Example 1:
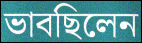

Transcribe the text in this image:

ভাবছিলেন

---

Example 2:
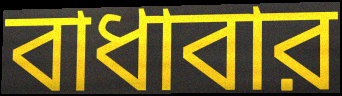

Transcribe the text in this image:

বাধাবার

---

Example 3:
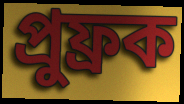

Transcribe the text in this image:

প্রুফ্রক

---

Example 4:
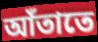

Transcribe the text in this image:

আঁতাতে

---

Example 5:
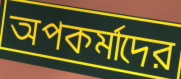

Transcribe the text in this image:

অপকর্মাদের